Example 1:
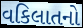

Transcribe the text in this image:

વકિલાતનો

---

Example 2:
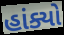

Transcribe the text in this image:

હાંક્યો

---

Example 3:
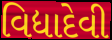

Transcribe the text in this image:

વિદ્યાદેવી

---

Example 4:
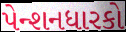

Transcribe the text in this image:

પેન્શનધારકો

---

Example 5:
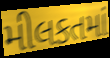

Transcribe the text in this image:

મીલકતમાં